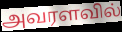
அவரளவில்